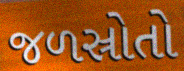
જળસ્રોતો